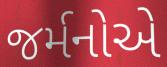
જર્મનોએ